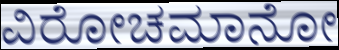
ವಿರೋಚಮಾನೋ